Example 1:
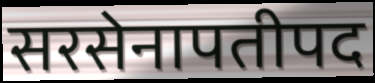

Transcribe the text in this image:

सरसेनापतीपद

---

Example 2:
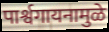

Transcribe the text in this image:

पार्श्वगायनामुळे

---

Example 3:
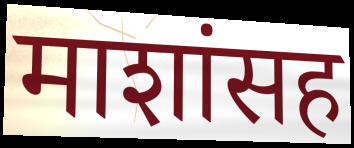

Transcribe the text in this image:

माशांसह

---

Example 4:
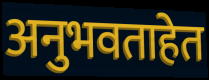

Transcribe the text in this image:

अनुभवताहेत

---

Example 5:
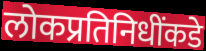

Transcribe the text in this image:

लोकप्रतिनिधींकडे